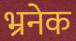
भ्रनेक